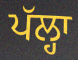
ਪੱਲ੍ਹਾ